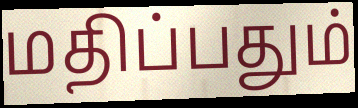
மதிப்பதும்